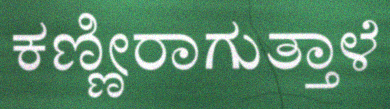
ಕಣ್ಣೀರಾಗುತ್ತಾಳೆ